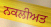
ਨਕਲੀਅਤ